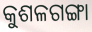
କୁଶଳଗଙ୍ଗା